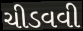
ચીડવવી